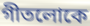
গীতলোকে